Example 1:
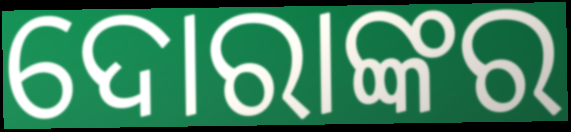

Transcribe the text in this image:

ଦୋରାଙ୍କର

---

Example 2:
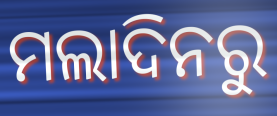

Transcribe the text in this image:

ମଲାଦିନରୁ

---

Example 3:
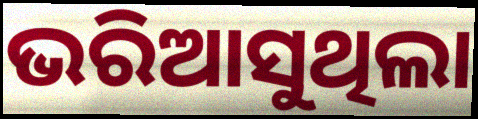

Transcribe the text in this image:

ଭରିଆସୁଥିଲା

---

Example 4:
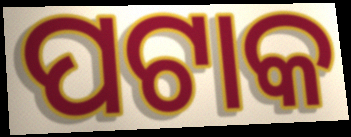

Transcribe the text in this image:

ପଟାକ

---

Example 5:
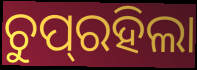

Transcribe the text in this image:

ଚୁପ୍‌ରହିଲା